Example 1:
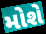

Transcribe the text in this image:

મોશે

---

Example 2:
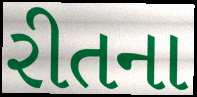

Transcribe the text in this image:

રીતના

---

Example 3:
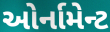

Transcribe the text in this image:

ઓર્નામેન્ટ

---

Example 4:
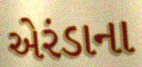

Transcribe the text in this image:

એરંડાના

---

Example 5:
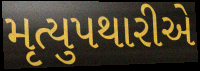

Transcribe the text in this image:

મૃત્યુપથારીએ